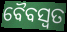
ବୈବସ୍ଵତ